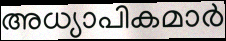
അധ്യാപികമാർ